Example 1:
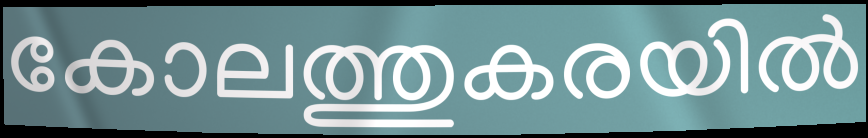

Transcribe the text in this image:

കോലത്തുകരയിൽ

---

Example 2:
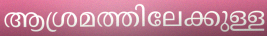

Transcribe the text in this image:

ആശ്രമത്തിലേക്കുള്ള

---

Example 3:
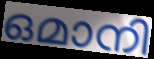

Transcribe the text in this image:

ഒമാനി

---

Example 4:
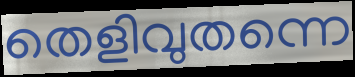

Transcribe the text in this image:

തെളിവുതന്നെ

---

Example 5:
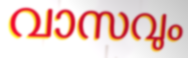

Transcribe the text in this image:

വാസവും